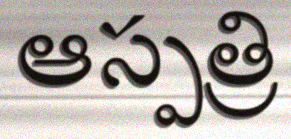
ఆస్పత్రి